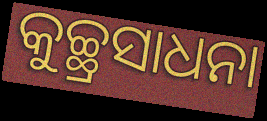
କୁଚ୍ଛ୍ରସାଧନା